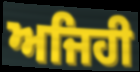
ਅਜਿਹੀ